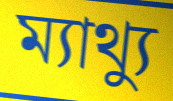
ম্যাথ্যু